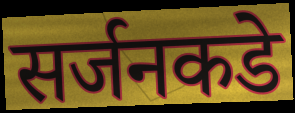
सर्जनकडे